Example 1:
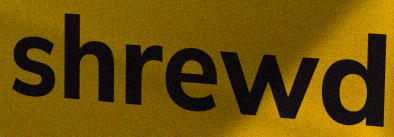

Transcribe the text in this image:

shrewd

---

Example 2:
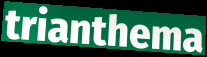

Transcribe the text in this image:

trianthema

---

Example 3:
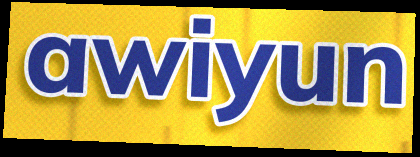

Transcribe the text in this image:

awiyun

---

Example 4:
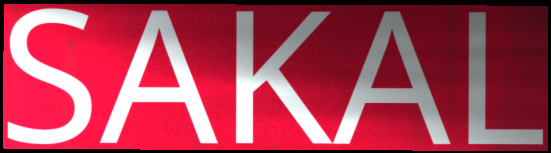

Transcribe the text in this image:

SAKAL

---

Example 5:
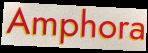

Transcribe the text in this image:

Amphora